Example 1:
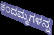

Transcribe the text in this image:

ಕಂದಮ್ಮಗಳನ್ನ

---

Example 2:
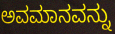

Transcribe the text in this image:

ಅವಮಾನವನ್ನು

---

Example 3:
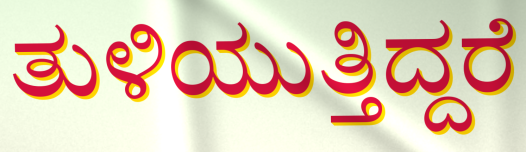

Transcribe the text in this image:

ತುಳಿಯುತ್ತಿದ್ದರೆ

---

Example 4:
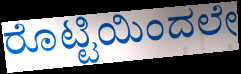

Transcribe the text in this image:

ರೊಟ್ಟಿಯಿಂದಲೇ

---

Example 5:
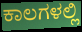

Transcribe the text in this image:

ಕಾಲಗಳಲ್ಲಿ